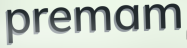
premam